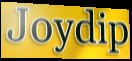
Joydip